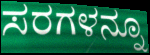
ಸರಗಳನ್ನೂ